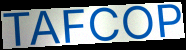
TAFCOP